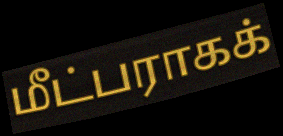
மீட்பராகக்